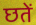
छतें